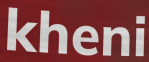
kheni